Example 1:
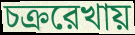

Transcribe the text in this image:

চক্ররেখায়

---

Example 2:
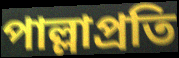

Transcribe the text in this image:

পাল্লাপ্রতি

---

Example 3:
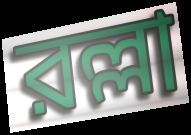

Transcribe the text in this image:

রল্লা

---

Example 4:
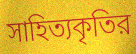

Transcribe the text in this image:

সাহিত্যকৃতির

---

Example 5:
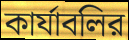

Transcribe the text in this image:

কার্যাবলির